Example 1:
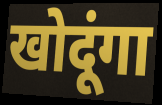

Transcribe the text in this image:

खोदूंगा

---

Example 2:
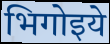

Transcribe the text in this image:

भिगोइये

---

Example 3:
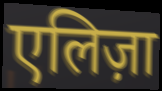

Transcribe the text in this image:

एलिज़ा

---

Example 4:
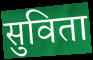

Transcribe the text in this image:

सुविता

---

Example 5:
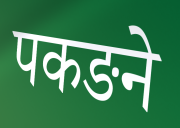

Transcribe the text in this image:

पकङने